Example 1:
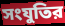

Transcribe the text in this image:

সংযুতির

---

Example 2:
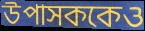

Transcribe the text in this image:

উপাসককেও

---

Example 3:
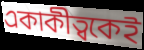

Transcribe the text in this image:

একাকীত্বকেই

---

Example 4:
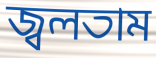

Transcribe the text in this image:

জ্বলতাম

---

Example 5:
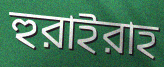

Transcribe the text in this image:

হুরাইরাহ